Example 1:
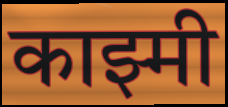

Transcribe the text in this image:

काझ्मी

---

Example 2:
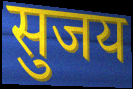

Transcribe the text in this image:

सुजय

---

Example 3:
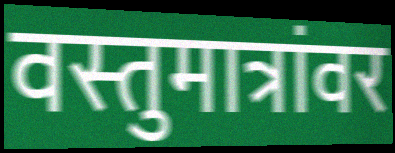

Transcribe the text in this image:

वस्तुमात्रांवर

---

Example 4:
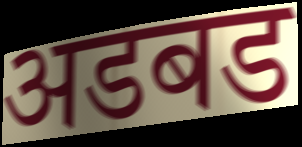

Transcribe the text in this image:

अडबड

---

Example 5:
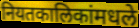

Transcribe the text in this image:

नियतकालिकांमधले